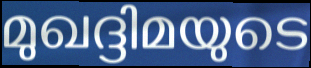
മുഖദ്ദിമയുടെ